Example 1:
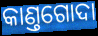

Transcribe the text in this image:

କାଣ୍ତଗୋଦା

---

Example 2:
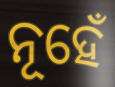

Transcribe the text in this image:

ନୂହେଁ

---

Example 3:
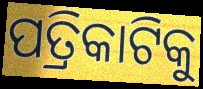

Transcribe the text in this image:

ପତ୍ରିକାଟିକୁ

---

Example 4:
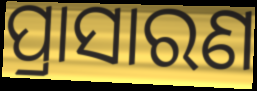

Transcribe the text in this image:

ପ୍ରାସାରଣ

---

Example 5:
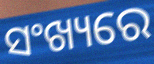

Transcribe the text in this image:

ସଂଖ୍ୟରେ